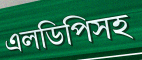
এলডিপিসহ